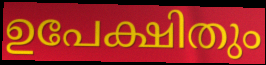
ഉപേക്ഷിതും